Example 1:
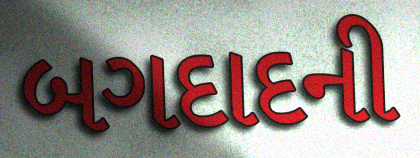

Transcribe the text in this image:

બગદાદની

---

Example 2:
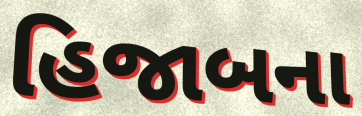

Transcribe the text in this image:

હિજાબના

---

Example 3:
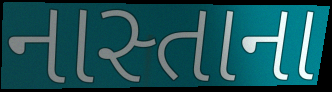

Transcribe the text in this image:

નાસ્તાના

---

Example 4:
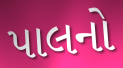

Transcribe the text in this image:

પાલનો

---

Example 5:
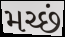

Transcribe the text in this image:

મચ્છં